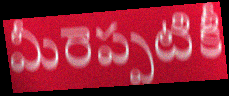
మీరెప్పటికీ